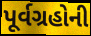
પૂર્વગ્રહોની